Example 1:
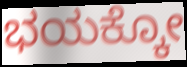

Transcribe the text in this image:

ಭಯಕ್ಕೋ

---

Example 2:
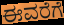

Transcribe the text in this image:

ಈವರೆಗೆ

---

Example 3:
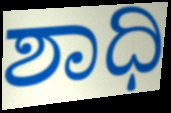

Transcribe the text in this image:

ಶಾಧಿ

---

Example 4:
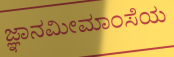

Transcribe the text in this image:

ಜ್ಞಾನಮೀಮಾಂಸೆಯ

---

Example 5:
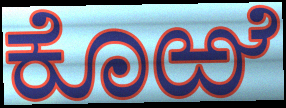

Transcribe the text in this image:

ಕೊಱೆ